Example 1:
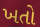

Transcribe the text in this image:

ખતો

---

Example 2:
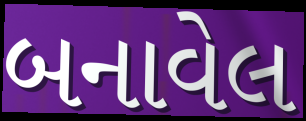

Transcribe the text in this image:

બનાવેલ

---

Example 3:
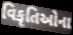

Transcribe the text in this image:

વિકૃતિઓના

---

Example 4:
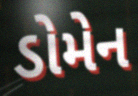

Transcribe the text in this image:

ડોમેન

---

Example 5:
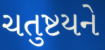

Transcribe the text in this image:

ચતુષ્ટયને